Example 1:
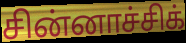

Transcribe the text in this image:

சின்னாச்சிக்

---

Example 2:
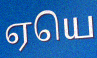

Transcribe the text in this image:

ஏயெ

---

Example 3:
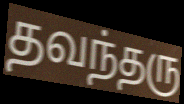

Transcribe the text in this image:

தவந்தரு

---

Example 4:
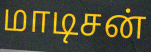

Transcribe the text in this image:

மாடிசன்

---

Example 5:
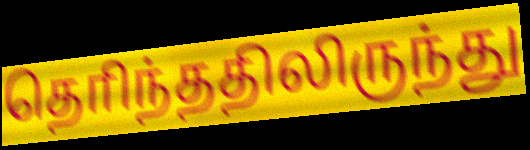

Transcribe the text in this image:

தெரிந்ததிலிருந்து